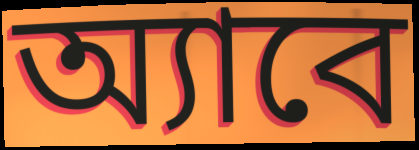
অ্যাবে